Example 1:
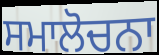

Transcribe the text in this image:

ਸਮਾਲੋਚਨਾ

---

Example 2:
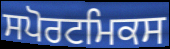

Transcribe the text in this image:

ਸਪੋਰਟਮਿਕਸ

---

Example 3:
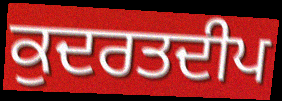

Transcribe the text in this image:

ਕੁਦਰਤਦੀਪ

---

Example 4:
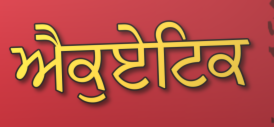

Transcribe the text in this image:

ਐਕੁਏਟਿਕ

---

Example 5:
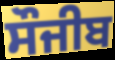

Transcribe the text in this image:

ਸੌਜੀਬ